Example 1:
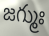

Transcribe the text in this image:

జగ్ముః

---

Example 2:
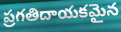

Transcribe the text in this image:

ప్రగతిదాయకమైన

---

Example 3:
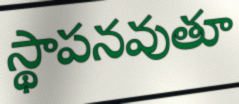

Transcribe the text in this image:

స్థాపనవుతూ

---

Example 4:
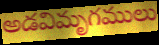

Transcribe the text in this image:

అడవిమృగములు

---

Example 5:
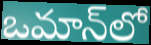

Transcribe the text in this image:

ఒమాన్‌లో